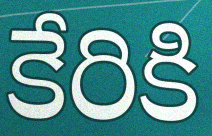
కేరికి